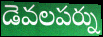
డెవలపర్ను